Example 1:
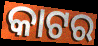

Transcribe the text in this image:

କାଟର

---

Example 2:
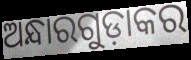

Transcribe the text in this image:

ଅନ୍ଧାରଗୁଡ଼ାକର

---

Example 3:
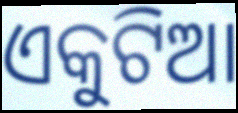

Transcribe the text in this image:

ଏକୁଟିଆ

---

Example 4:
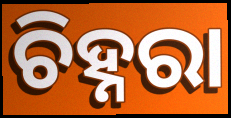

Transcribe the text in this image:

ଚିହ୍ନରା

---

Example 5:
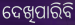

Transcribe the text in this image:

ଦେଖିପାରିବି